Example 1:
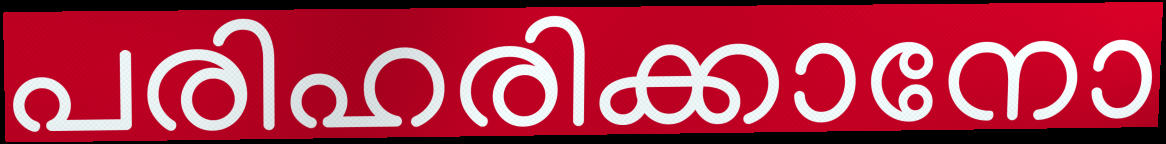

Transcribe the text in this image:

പരിഹരിക്കാനോ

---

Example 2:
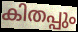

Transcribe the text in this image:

കിതപ്പും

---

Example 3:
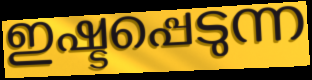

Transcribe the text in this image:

ഇഷ്ടപ്പെടുന്ന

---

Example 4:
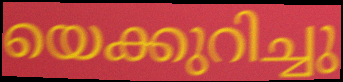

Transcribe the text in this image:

യെക്കുറിച്ചു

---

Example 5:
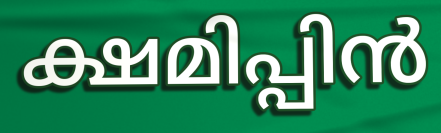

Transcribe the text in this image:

ക്ഷമിപ്പിൻ